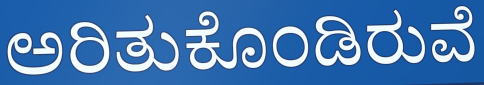
ಅರಿತುಕೊಂಡಿರುವೆ